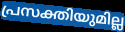
പ്രസക്തിയുമില്ല